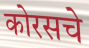
कोरसचे